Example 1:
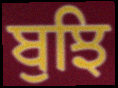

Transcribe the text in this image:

ਬੁਝਿ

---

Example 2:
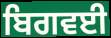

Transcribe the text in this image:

ਬਿਗਵਈ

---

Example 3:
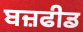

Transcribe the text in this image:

ਬਜ਼ਫੀਡ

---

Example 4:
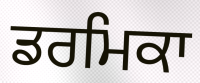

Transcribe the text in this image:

ਡਰਮਿਕਾ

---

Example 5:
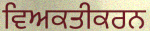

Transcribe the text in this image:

ਵਿਅਕਤੀਕਰਨ